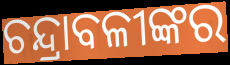
ଚନ୍ଦ୍ରାବଳୀଙ୍କର